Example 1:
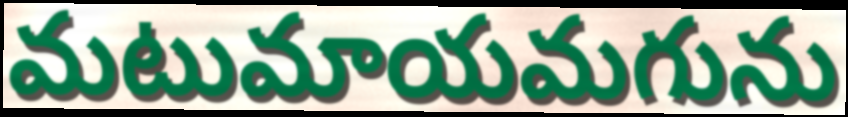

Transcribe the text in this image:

మటుమాయమగును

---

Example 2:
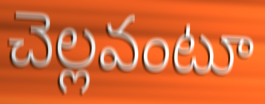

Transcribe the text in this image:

చెల్లవంటూ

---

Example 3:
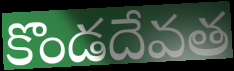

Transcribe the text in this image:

కొండదేవత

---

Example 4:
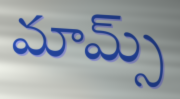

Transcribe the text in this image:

మామ్స్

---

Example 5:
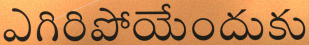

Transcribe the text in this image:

ఎగిరిపోయేందుకు